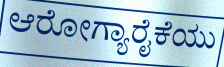
ಆರೋಗ್ಯಾರೈಕೆಯು